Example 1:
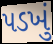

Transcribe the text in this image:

પડખું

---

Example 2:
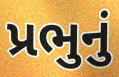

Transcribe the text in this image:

પ્રભુનું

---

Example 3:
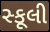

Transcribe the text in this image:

સ્કૂલી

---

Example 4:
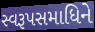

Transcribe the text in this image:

સ્વરૂપસમાધિને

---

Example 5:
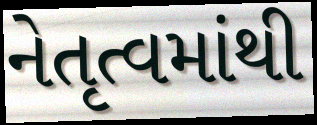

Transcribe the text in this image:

નેતૃત્વમાંથી